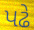
પઢે